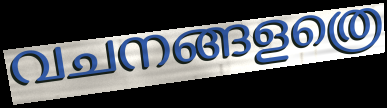
വചനങ്ങളത്രെ